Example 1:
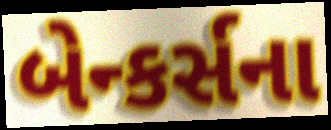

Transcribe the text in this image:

બેન્કર્સના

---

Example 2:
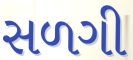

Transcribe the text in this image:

સળગી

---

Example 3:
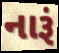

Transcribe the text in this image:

નારૂં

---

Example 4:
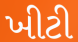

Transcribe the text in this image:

ખીટી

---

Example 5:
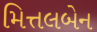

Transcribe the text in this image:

મિત્તલબેન